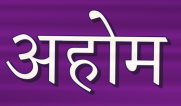
अहोम